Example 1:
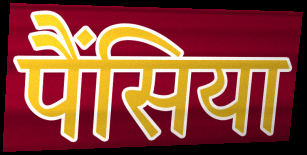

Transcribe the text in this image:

पैंसिया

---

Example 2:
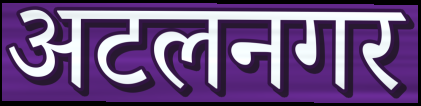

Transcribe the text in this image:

अटलनगर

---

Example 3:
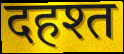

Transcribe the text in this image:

दहश्त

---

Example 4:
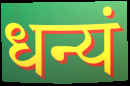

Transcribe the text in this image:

धन्यं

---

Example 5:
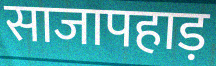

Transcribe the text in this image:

साजापहाड़